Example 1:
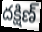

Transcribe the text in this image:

దక్షిణ్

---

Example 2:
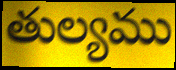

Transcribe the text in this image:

తుల్యము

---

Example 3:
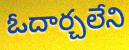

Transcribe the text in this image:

ఓదార్చలేని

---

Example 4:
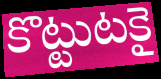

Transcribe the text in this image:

కొట్టుటకై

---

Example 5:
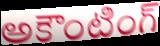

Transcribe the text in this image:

అకౌంటింగ్